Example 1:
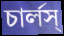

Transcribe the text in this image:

চার্লস্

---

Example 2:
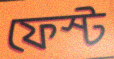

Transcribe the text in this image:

ফেস্ট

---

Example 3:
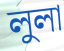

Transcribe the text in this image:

লুলা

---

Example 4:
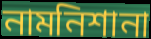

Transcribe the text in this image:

নামনিশানা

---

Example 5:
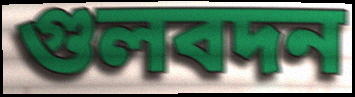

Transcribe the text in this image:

গুলবদন